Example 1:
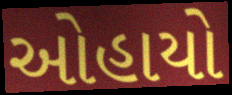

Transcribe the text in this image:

ઓહાયો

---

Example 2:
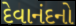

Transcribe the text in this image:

દેવાનંદનો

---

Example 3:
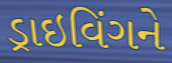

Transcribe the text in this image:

ડ્રાઇવિંગને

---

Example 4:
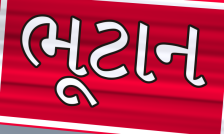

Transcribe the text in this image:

ભૂટાન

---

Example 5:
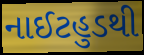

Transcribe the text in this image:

નાઈટહુડથી